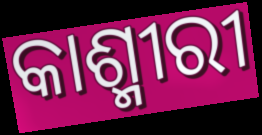
କାଶ୍ମୀରୀ